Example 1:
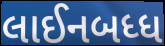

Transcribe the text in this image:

લાઈનબધ્ધ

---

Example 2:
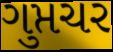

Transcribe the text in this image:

ગુપ્તચર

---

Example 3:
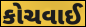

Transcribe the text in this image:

કોચવાઈ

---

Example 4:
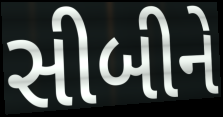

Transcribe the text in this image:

સીબીને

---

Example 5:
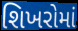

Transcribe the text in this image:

શિખરોમાં